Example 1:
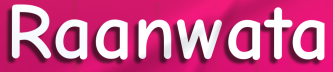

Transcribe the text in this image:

Raanwata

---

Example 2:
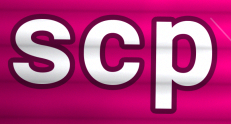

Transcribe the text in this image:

scp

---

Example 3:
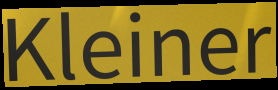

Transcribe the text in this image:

Kleiner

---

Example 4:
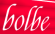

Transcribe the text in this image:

bolbe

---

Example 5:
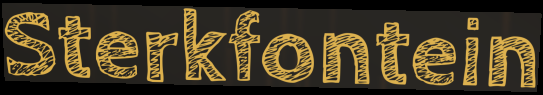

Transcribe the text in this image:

Sterkfontein